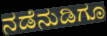
ನಡೆನುಡಿಗೂ